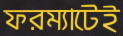
ফরম্যাটেই